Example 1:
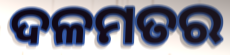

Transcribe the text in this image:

ଦଳମତର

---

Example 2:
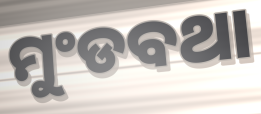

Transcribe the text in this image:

ମୁଂଡବଥା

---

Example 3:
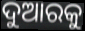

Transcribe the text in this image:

ଦୁଆରକୁ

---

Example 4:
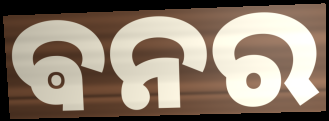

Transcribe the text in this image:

ଵନର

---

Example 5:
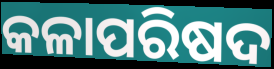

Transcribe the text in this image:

କଳାପରିଷଦ